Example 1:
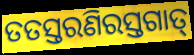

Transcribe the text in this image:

ତତସ୍ତରଣିରସ୍ତଗାତ୍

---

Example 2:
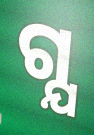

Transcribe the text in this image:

ଗ୍ଯ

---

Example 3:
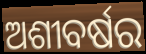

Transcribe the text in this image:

ଅଶୀବର୍ଷର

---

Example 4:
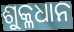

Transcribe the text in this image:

ଶୁକ୍ଳଧାନ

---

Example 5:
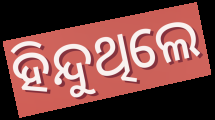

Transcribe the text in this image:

ହିନ୍ଦୁଥିଲେ